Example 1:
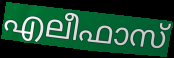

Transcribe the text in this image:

എലീഫാസ്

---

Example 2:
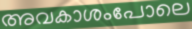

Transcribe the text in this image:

അവകാശംപോലെ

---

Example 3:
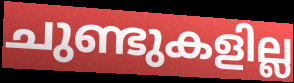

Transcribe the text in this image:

ചുണ്ടുകളില്ല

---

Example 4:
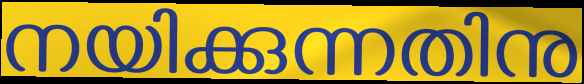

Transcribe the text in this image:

നയിക്കുന്നതിനു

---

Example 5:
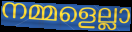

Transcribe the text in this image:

നമ്മളെല്ലാ